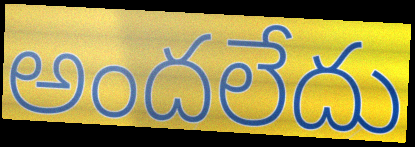
అందలేదు